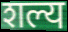
शल्‍य